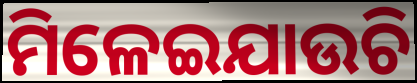
ମିଳେଇଯାଉଚି